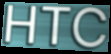
HTC